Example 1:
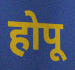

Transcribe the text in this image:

होपू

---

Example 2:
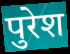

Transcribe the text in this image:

पुरेश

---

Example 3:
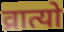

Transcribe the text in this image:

व्रात्यो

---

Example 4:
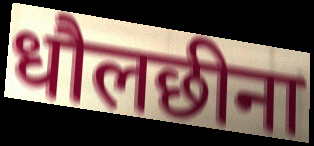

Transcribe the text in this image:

धौलछीना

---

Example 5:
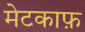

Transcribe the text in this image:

मेटकाफ़